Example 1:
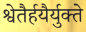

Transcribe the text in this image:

श्वेतैर्हयैर्युक्ते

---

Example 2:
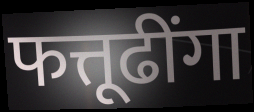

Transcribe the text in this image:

फत्तूढींगा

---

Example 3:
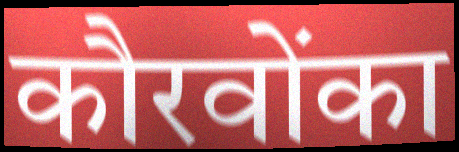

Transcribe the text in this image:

कौरवोंका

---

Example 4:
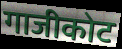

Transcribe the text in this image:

गाजीकोट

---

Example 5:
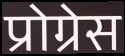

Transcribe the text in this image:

प्रोग्रेस